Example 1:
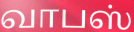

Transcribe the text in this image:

வாபஸ்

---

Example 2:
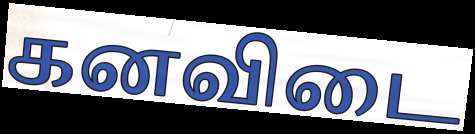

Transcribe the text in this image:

கனவிடை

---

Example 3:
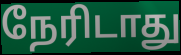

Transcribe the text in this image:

நேரிடாது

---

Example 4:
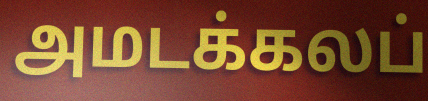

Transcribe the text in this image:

அமடக்கலப்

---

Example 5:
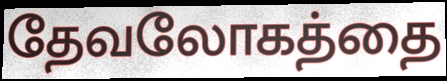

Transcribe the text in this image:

தேவலோகத்தை